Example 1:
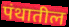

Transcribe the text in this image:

पंथातील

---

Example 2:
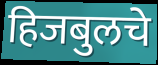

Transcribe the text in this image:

हिजबुलचे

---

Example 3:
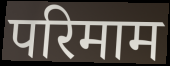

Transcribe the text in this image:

परिमाम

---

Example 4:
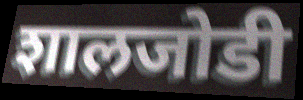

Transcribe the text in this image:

शालजोडी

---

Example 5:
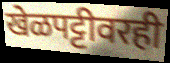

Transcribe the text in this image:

खेळपट्टीवरही